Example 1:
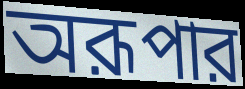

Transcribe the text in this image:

অরূপার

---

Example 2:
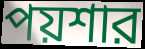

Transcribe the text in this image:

পয়শার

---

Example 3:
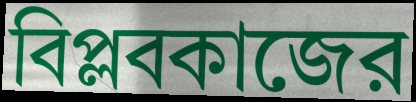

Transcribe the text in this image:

বিপ্লবকাজের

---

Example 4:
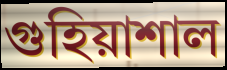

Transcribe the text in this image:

গুহিয়াশাল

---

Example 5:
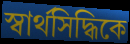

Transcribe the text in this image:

স্বার্থসিদ্ধিকে